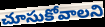
చూసుకోవాలని